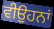
ਵੀਉਹਨਾਂ